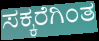
ಸಕ್ಕರೆಗಿಂತ